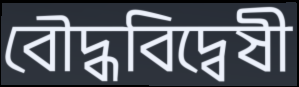
বৌদ্ধবিদ্বেষী